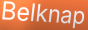
Belknap